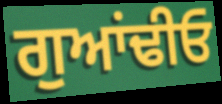
ਗੁਆਂਢੀਓ